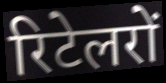
रिटेलरों